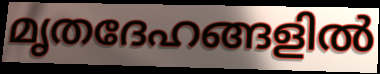
മൃതദേഹങ്ങളിൽ